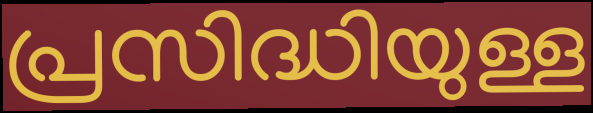
പ്രസിദ്ധിയുള്ള